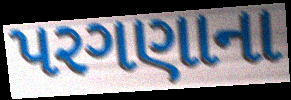
પરગણાના